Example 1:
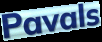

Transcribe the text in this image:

Pavals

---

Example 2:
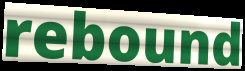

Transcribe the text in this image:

rebound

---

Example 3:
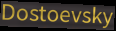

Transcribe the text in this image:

Dostoevsky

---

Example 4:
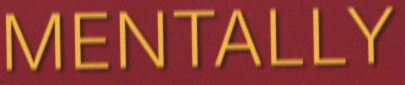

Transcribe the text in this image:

MENTALLY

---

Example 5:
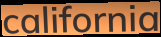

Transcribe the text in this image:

california